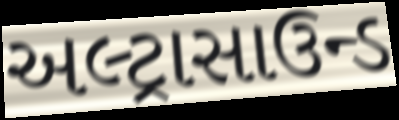
અલ્ટ્રાસાઉન્ડ